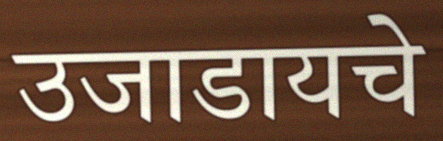
उजाडायचे